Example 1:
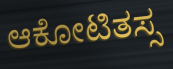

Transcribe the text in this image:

ಆಕೋಟಿತಸ್ಸ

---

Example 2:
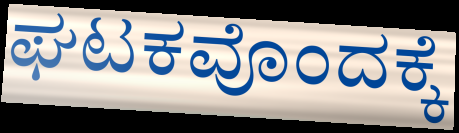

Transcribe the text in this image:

ಘಟಕವೊಂದಕ್ಕೆ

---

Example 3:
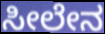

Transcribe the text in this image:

ಸೀಲೇನ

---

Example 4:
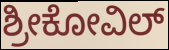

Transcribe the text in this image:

ಶ್ರೀಕೋವಿಲ್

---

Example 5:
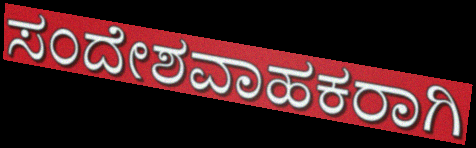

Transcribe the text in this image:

ಸಂದೇಶವಾಹಕರಾಗಿ